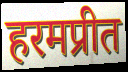
हरमप्रीत